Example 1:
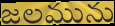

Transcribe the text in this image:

జలమును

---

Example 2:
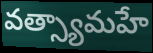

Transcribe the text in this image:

వత్స్యామహే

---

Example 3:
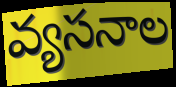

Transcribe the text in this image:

వ్యసనాల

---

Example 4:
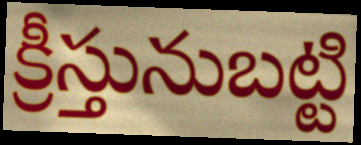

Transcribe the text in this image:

క్రీస్తునుబట్టి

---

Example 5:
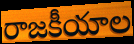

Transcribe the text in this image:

రాజకీయాల